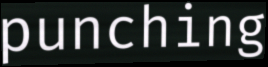
punching